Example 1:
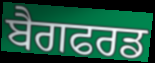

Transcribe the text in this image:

ਬੈਗਫਰਡ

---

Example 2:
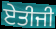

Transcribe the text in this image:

ਏਤੀਜੀ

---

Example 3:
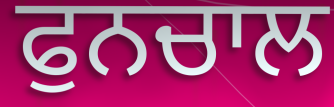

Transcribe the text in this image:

ਫੁਨਚਾਲ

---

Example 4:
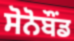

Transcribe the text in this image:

ਸੋਨੋਬੌਂਡ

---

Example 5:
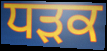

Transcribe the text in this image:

ਧੜਕ